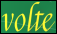
volte